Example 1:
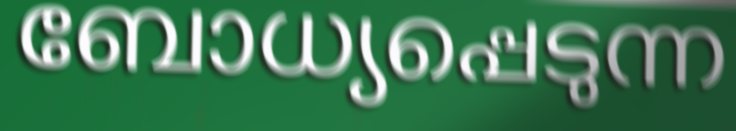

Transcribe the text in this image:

ബോധ്യപ്പെടുന്ന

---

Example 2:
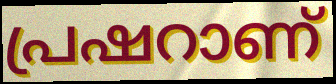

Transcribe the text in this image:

പ്രഷറാണ്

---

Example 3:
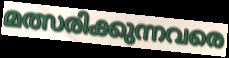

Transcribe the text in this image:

മത്സരിക്കുന്നവരെ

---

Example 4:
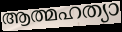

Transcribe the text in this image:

ആത്മഹത്യാ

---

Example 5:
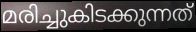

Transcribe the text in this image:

മരിച്ചുകിടക്കുന്നത്